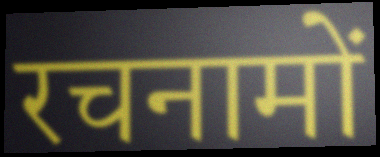
रचनामों